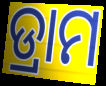
ଡ୍ରାମ